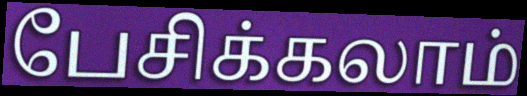
பேசிக்கலாம்